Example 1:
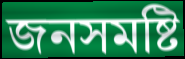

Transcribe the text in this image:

জনসমষ্টি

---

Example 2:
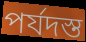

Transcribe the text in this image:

পর্যদস্ত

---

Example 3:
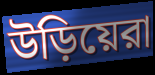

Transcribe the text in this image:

উড়িয়েরা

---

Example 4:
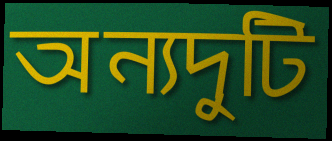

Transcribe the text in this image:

অন্যদুটি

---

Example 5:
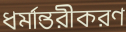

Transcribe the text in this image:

ধর্মান্তরীকরণ